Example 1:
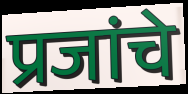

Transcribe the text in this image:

प्रजांचे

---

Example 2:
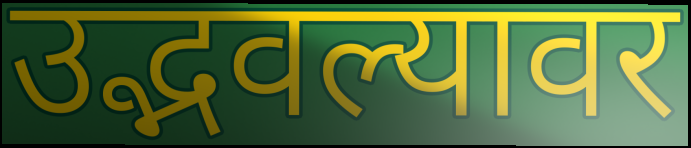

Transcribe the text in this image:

उद्भवल्यावर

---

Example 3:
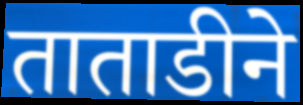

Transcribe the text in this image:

ताताडीने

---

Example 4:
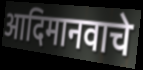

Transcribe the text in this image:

आदिमानवाचे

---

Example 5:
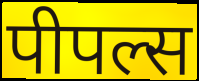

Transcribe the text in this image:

पीपल्स